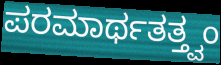
ಪರಮಾರ್ಥತತ್ತ್ವಂ